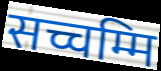
सच्चम्मि